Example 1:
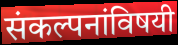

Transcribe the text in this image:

संकल्पनांविषयी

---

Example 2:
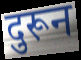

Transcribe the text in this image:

दुरून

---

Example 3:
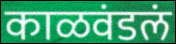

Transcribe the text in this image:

काळवंडलं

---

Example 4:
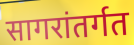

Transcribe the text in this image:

सागरांतर्गत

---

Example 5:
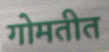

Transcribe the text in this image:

गोमतीत